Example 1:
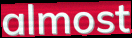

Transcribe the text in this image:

almost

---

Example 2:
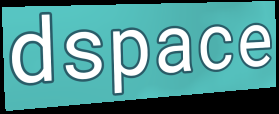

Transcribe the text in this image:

dspace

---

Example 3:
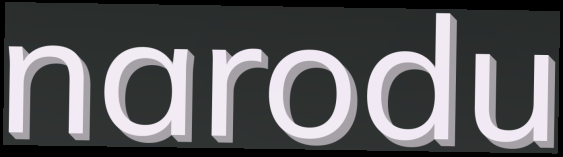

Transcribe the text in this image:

narodu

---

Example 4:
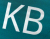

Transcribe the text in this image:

KB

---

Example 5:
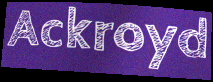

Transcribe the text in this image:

Ackroyd